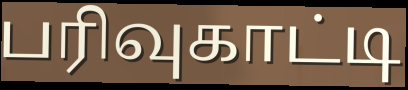
பரிவுகாட்டி